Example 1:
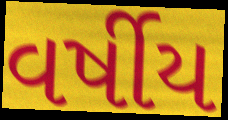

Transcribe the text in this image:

વર્ષીય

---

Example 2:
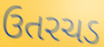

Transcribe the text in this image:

ઉતરચડ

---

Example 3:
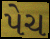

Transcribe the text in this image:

પેચ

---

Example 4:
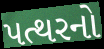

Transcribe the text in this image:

પત્થરનો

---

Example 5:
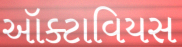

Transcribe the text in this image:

ઑક્ટાવિયસ